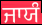
ਜਾਯੰ